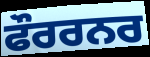
ਫੌਰਰਨਰ